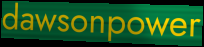
dawsonpower